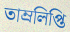
তাম্রলিপ্তি